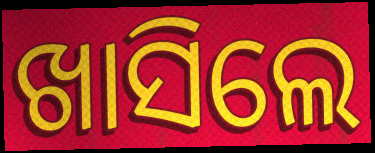
ଖାସିଲେ